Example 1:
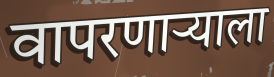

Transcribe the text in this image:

वापरणार्‍याला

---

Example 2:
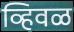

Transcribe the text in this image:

व्हिवळ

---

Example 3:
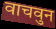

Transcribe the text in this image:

वाचवुन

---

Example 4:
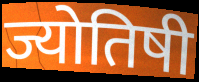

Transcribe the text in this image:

ज्योतिषी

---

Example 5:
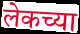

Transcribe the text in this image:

लेकच्या